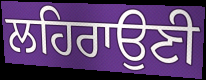
ਲਹਿਰਾਉਣੀ